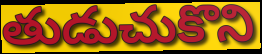
తుడుచుకొని